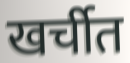
खर्चीत